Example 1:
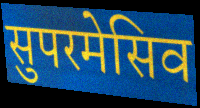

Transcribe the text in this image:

सुपरमेसिव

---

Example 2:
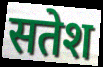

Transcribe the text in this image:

सतेश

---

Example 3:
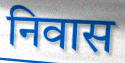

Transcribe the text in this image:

निवास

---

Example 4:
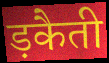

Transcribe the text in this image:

ड़कैती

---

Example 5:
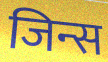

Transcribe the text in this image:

जिन्‍स